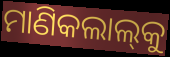
ମାଣିକଲାଲ୍‍କୁ